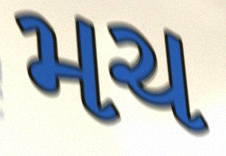
મચ